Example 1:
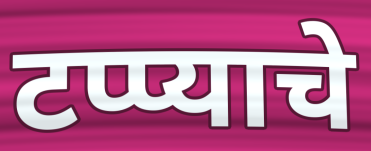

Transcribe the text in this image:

टप्प्याचे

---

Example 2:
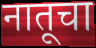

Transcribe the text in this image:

नातूचा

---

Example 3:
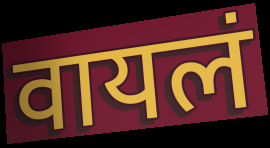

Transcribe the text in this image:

वायलं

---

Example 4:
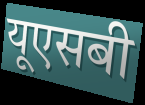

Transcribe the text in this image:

यूएसबी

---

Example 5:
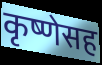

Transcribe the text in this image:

कृष्णेसह